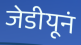
जेडीयूनं